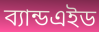
ব্যান্ডএইড